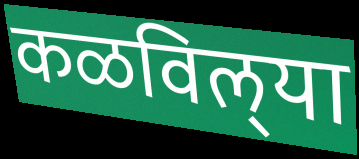
कळविल्या